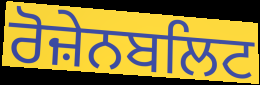
ਰੋਜ਼ੇਨਬਲਿਟ